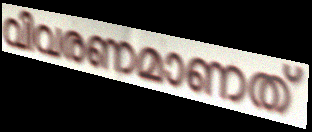
വിവരണമാണത്